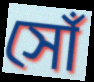
সোঁ